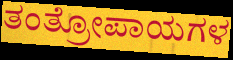
ತಂತ್ರೋಪಾಯಗಳ